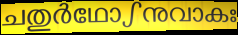
ചതുർഥോഽനുവാകഃ